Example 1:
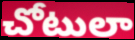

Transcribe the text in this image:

చోటులా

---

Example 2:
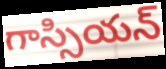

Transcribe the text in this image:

గాస్సియన్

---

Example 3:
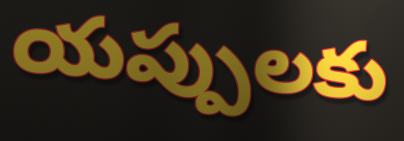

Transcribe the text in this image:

యప్పులకు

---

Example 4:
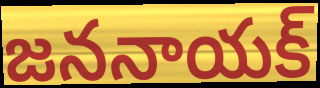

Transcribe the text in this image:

జననాయక్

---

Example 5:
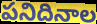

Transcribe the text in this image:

పనిదినాల